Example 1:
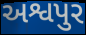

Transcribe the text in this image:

અશ્વપુર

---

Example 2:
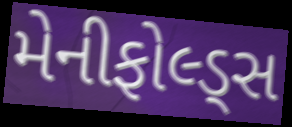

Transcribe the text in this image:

મેનીફોલ્ડ્સ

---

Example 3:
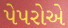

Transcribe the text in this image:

પેપરોએ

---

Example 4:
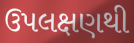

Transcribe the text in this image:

ઉપલક્ષણથી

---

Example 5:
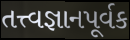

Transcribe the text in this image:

તત્ત્વજ્ઞાનપૂર્વક